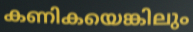
കണികയെങ്കിലും